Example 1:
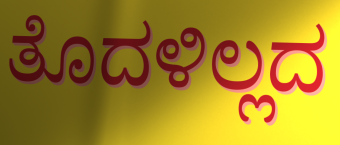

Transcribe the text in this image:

ತೊದಳಿಲ್ಲದ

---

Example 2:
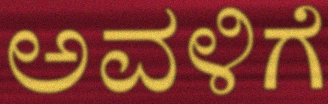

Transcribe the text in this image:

ಅವಳಿಗೆ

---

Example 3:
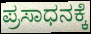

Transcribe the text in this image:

ಪ್ರಸಾಧನಕ್ಕೆ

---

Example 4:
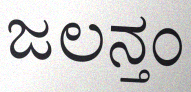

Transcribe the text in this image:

ಜಲನ್ತಂ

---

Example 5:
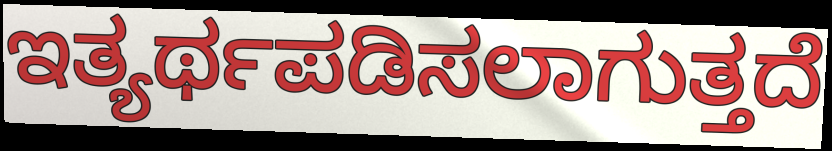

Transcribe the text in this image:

ಇತ್ಯರ್ಥಪಡಿಸಲಾಗುತ್ತದೆ